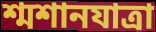
শ্মশানযাত্রা